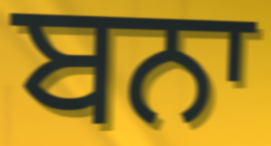
ਬਨਾ